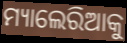
ମ୍ୟାଲେରିଆକୁ